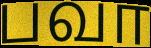
பவா